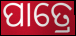
ପାତ୍ରେ